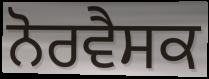
ਨੋਰਵੈਸਕ